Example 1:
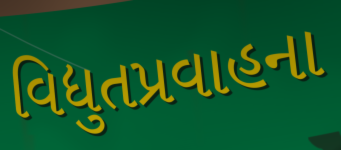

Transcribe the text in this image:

વિદ્યુતપ્રવાહના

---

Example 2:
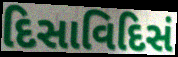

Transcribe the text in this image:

દિસાવિદિસં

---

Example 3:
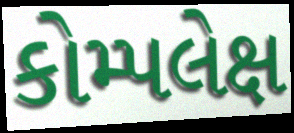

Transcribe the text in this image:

કોમ્પલેક્ષ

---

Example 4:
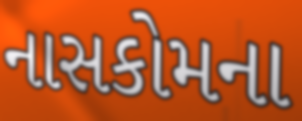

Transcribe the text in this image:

નાસકોમના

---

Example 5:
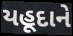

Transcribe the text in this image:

યહૂદાને